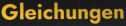
Gleichungen